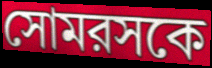
সোমরসকে